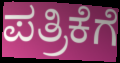
ಪತ್ರಿಕೆಗೆ